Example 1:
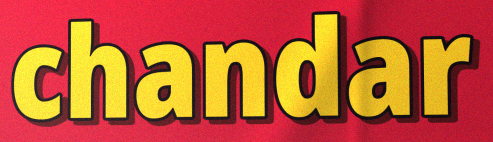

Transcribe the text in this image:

chandar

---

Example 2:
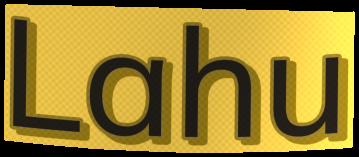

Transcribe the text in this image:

Lahu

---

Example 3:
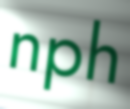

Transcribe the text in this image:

nph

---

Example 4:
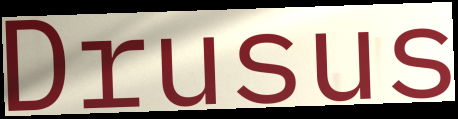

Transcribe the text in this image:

Drusus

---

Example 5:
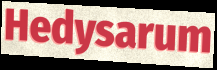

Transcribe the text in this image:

Hedysarum